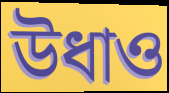
উধাও